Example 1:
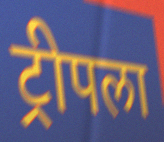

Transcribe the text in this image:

ट्रीपला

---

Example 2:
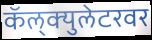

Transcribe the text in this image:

कॅल्क्युलेटरवर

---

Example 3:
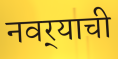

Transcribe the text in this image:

नवर्याची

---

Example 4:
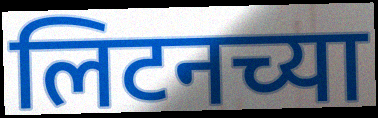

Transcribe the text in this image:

लिटनच्या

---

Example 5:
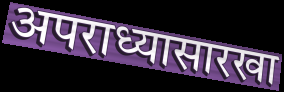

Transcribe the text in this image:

अपराध्यासारखा